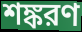
শঙ্করণ